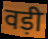
वड़ी